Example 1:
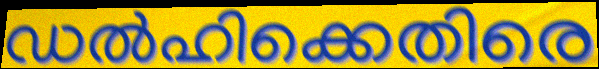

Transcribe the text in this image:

ഡൽഹിക്കെതിരെ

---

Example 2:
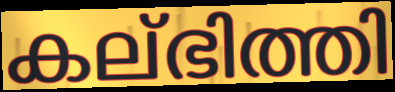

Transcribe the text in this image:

കല്ഭിത്തി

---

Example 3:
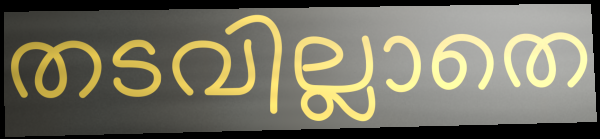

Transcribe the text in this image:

തടവില്ലാതെ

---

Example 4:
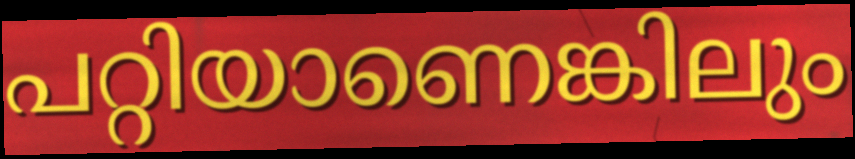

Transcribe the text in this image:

പറ്റിയാണെങ്കിലും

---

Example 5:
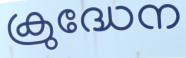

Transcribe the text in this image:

ക്രുദ്ധേന